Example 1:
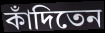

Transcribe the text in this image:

কাঁদিতেন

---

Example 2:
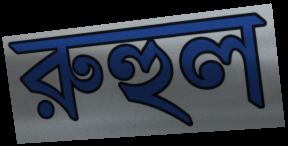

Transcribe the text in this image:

রুহুল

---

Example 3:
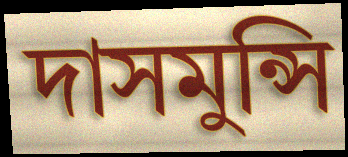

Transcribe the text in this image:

দাসমুন্সি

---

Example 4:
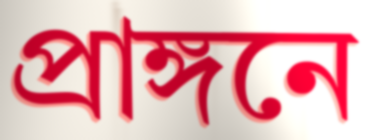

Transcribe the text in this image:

প্রাঙ্গনে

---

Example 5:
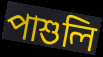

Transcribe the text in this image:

পাশুলি